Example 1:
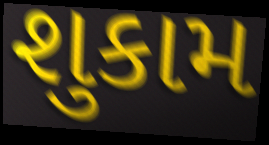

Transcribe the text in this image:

શુકામ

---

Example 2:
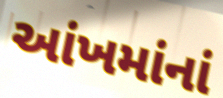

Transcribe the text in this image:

આંખમાંનાં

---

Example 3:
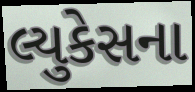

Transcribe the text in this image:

લ્યુકેસના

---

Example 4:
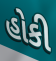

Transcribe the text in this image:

હોકી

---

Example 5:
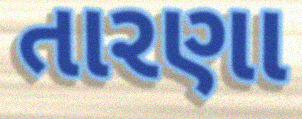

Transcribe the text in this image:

તારણા